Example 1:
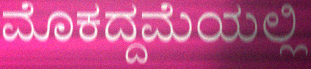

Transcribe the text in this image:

ಮೊಕದ್ದಮೆಯಲ್ಲಿ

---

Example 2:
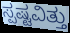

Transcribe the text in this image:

ಸ್ಪಷ್ಟವಿತ್ತು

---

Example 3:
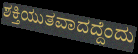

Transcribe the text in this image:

ಶಕ್ತಿಯುತವಾದದ್ದೆಂದು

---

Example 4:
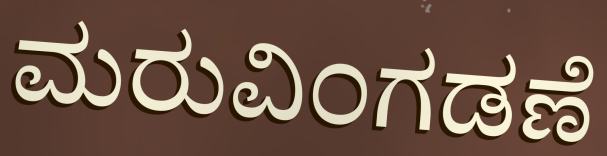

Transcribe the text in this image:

ಮರುವಿಂಗಡಣೆ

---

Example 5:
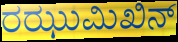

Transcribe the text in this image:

ರಝುಮಿಖಿನ್